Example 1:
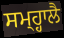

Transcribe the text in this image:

ਸਮ੍ਹ੍ਹਾਲੈ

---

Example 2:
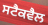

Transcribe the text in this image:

ਸਟੈਕਵੈਲ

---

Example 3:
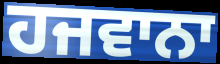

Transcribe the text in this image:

ਹਜਵਾਨਾ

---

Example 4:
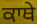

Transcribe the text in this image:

ਕਾਥੇ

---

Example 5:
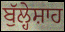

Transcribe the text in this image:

ਬੁੱਲ੍ਹੇਸ਼ਾਹ